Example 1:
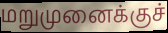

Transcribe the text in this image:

மறுமுனைக்குச்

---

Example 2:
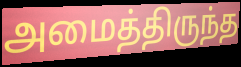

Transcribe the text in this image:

அமைத்திருந்த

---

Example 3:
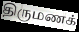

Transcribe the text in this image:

திருமணக்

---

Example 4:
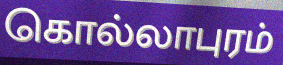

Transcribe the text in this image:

கொல்லாபுரம்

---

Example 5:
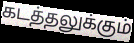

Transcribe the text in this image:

கடத்தலுக்கும்